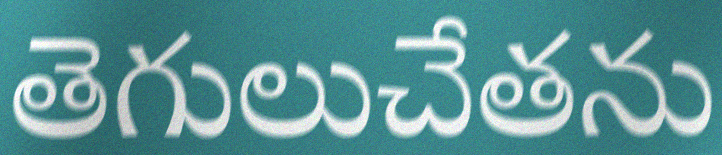
తెగులుచేతను